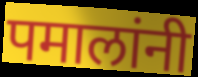
पमालांनी